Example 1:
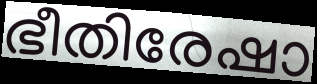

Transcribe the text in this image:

ഭീതിരേഷാ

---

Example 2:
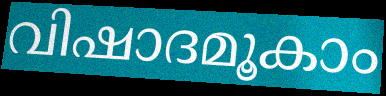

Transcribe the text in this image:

വിഷാദമൂകാം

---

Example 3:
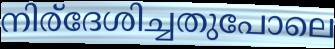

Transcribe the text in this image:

നിര്ദേശിച്ചതുപോലെ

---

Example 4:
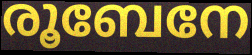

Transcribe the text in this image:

രൂബേനേ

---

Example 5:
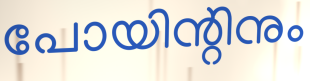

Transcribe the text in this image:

പോയിന്റിനും